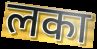
लका